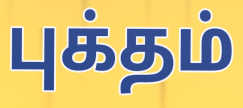
புக்தம்